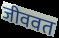
जीववत